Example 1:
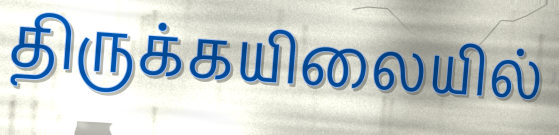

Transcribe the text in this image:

திருக்கயிலையில்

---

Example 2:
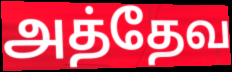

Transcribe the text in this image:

அத்தேவ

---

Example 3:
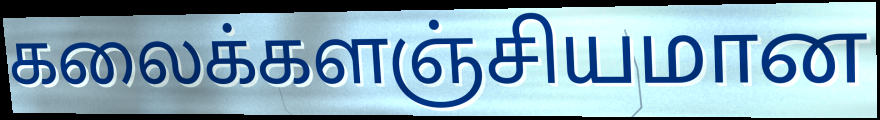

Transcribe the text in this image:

கலைக்களஞ்சியமான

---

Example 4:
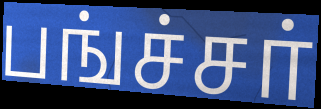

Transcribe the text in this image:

பங்ச்சர்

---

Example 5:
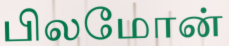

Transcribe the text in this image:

பிலமோன்